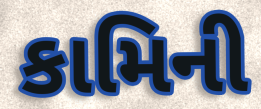
કામિની